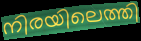
നിരയിലെത്തി